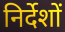
निर्देशों